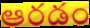
ఆరడం